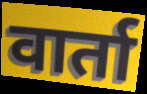
वार्ता